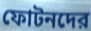
ফোটনদের